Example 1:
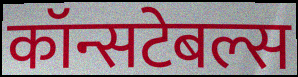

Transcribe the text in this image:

कॉन्सटेबल्स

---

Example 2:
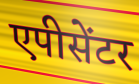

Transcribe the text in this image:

एपीसेंटर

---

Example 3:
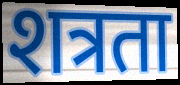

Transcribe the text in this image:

शत्रता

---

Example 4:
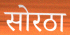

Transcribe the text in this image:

सोरठा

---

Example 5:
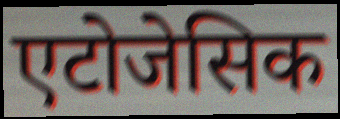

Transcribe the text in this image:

एटोजेसिक